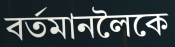
বৰ্তমানলৈকে